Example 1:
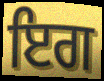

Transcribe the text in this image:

ਇਗ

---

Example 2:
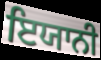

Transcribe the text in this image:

ਇਯਾਨੀ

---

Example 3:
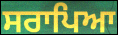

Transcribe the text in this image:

ਸਰਾਪਿਆ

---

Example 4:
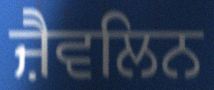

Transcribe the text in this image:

ਜ਼ੈਵਲਿਨ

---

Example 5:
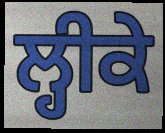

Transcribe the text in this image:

ਲ੍ਹੀਕੇ